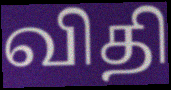
விதி